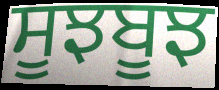
ਸੂਝਬੂਝ